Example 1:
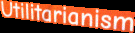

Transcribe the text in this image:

Utilitarianism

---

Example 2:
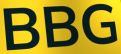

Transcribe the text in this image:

BBG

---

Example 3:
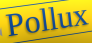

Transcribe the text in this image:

Pollux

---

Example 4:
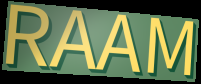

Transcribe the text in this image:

RAAM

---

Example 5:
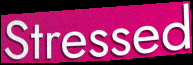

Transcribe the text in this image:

Stressed